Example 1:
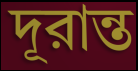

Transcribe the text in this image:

দূরান্ত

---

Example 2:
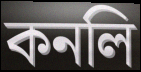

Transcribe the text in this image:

কনলি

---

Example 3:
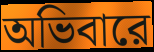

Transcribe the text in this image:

অভিবারে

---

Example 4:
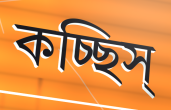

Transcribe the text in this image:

কচ্ছিস্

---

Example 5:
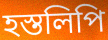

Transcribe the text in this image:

হস্তলিপি